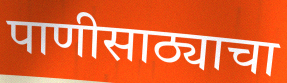
पाणीसाठ्याचा